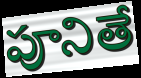
పూనితే